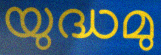
യുദ്ധമു